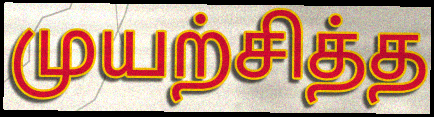
முயற்சித்த